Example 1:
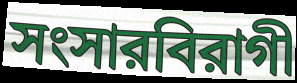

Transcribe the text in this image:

সংসারবিরাগী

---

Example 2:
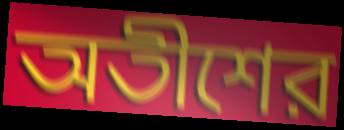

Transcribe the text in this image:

অতীশের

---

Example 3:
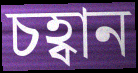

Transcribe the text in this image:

চহ্বান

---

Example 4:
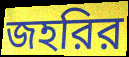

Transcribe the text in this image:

জহরির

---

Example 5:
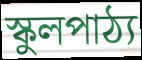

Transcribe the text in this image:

স্কুলপাঠ্য